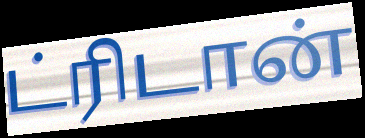
ட்ரிடான்